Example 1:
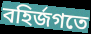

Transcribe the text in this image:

বহির্জগতে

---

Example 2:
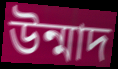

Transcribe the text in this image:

উন্মাদ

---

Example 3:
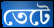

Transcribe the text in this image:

তেটে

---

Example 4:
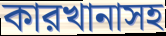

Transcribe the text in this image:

কারখানাসহ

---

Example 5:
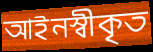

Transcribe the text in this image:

আইনস্বীকৃত